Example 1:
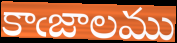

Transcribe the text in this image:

కాఁజాలము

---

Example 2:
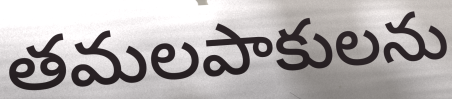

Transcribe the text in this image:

తమలపాకులను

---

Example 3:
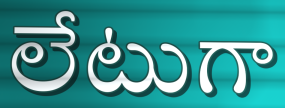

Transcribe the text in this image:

లేటుగా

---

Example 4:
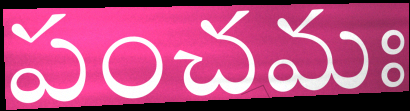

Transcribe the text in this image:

పంచమః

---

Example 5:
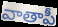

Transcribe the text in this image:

వాతాపీ